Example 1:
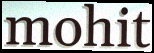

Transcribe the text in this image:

mohit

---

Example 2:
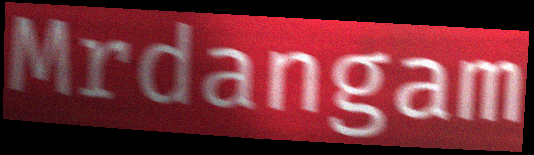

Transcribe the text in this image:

Mrdangam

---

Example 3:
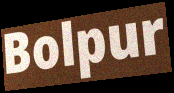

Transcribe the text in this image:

Bolpur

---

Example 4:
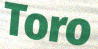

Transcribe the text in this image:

Toro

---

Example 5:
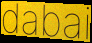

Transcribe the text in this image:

dabai